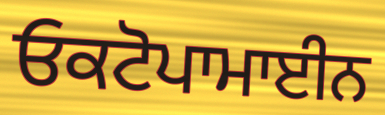
ਓਕਟੋਪਾਮਾਈਨ